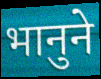
भानुने